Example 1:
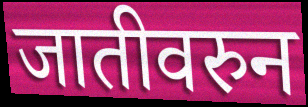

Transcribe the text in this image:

जातीवरुन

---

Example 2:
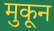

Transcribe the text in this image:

मुकून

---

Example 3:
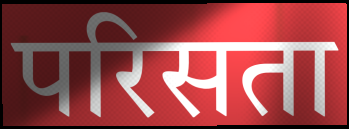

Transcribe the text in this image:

परिसता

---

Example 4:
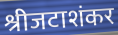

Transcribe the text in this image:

श्रीजटाशंकर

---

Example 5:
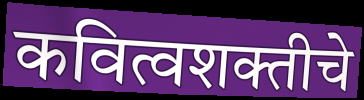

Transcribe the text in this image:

कवित्वशक्तीचे